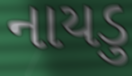
નાયડુ